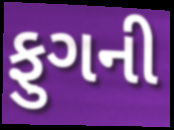
ફુગની